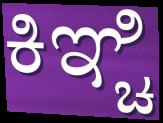
ಕಿಞ್ಚಿ